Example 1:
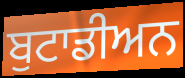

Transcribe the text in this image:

ਬੁਟਾਡੀਅਨ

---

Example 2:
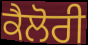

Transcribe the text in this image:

ਕੈਲੋਰੀ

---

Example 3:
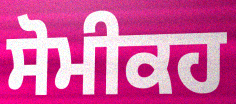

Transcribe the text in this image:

ਸੋਮੀਕਹ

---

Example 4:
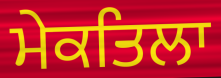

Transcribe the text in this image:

ਮੇਕਤਿਲਾ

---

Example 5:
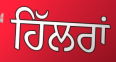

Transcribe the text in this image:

ਹਿੱਲਰਾਂ